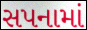
સપનામાં